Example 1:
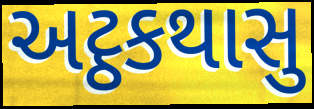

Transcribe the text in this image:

અટ્ઠકથાસુ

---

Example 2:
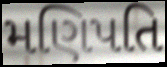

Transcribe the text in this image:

મણિપતિ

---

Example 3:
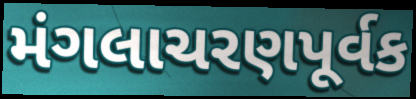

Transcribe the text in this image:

મંગલાચરણપૂર્વક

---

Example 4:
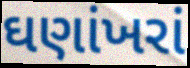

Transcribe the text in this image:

ઘણાંખરાં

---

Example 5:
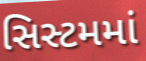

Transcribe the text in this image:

સિસ્ટમમાં